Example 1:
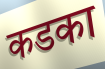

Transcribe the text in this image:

कडका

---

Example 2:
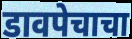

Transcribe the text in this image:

डावपेचाचा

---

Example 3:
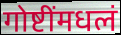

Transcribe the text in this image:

गोष्टींमधलं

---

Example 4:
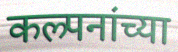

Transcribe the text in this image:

कल्पनांच्या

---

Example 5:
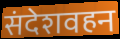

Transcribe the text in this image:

संदेशवहन